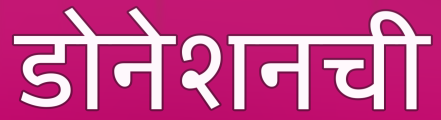
डोनेशनची